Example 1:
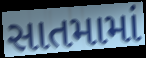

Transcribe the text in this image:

સાતમામાં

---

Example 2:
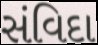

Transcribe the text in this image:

સંવિદા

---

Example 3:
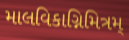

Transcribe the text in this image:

માલવિકાગ્નિમિત્રમ્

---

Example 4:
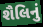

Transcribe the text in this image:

શૈલિનું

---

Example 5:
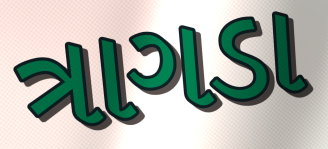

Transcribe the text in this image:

ત્રાગડા